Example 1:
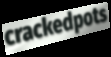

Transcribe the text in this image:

crackedpots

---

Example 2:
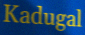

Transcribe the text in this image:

Kadugal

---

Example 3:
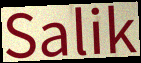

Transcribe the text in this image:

Salik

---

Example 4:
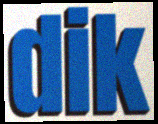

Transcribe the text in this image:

dik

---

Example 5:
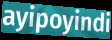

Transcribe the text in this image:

ayipoyindi